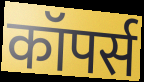
कॉपर्स